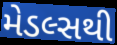
મેડલ્સથી